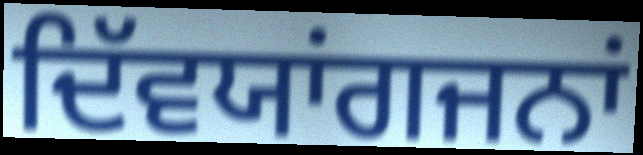
ਦਿੱਵਯਾਂਗਜਨਾਂ